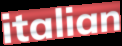
italian